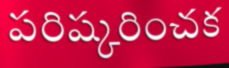
పరిష్కరించక